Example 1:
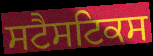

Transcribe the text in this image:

ਸਟੈਸਟਿਕਸ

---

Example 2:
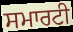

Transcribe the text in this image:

ਸਮਾਰਟੀ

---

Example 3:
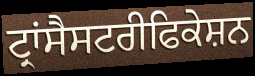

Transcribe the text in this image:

ਟ੍ਰਾਂਸੈਸਟਰੀਫਿਕੇਸ਼ਨ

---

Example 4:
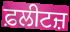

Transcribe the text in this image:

ਫ਼ਲੀਟਜ਼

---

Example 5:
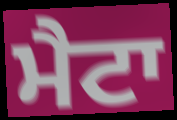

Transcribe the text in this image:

ਮੈਟਾ